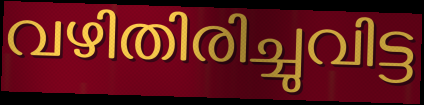
വഴിതിരിച്ചുവിട്ട